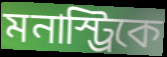
মনাস্ট্রিকে